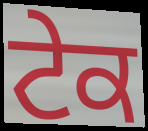
ਟੇਕ